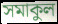
সমাকুল